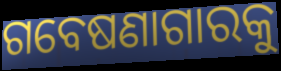
ଗବେଷଣାଗାରକୁ